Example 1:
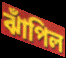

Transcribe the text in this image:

ঝাঁপিল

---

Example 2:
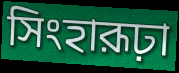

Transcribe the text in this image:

সিংহারূঢ়া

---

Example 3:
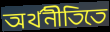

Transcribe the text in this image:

অর্থনীতিতে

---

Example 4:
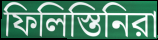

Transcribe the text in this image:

ফিলিস্তিনিরা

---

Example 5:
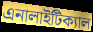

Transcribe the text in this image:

এনালাইটিক্যাল